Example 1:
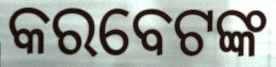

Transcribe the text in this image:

କରବେଟଙ୍କ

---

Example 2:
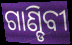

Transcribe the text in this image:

ଗାଣ୍ଡିବୀ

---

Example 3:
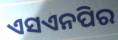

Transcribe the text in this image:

ଏସଏନପିର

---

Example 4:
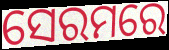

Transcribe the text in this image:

ସେରମରେ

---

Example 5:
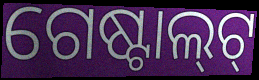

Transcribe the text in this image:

ଗେଷ୍ଟାଲ୍‌ଟ୍